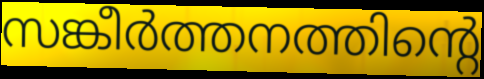
സങ്കീർത്തനത്തിന്റെ